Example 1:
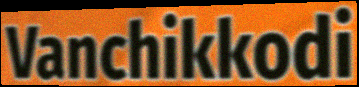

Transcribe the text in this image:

Vanchikkodi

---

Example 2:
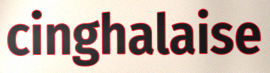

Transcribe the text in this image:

cinghalaise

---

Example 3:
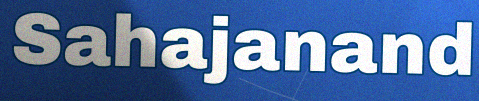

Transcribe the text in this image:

Sahajanand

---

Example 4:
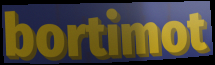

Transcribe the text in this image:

bortimot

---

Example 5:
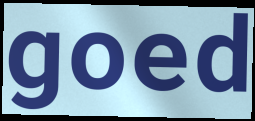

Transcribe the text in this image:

goed